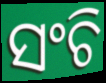
ସଂଚି